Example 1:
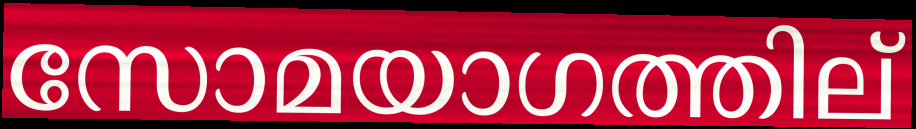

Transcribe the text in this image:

സോമയാഗത്തില്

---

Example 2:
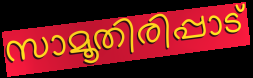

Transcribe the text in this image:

സാമൂതിരിപ്പാട്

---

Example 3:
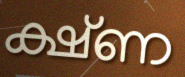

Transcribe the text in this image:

ക്ഷ്ണ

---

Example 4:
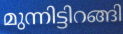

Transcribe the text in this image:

മുന്നിട്ടിറങ്ങി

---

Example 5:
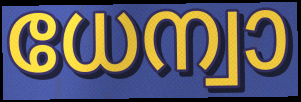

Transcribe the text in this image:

ധേന്വാ